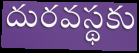
దురవస్థకు